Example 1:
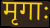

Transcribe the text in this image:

मृगाः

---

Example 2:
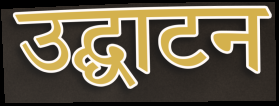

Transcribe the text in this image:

उद्घाटन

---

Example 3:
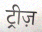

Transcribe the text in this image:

ट्रीज़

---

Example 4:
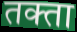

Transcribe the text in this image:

तक्ता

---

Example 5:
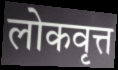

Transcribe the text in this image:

लोकवृत्त